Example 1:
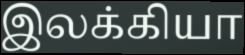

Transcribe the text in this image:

இலக்கியா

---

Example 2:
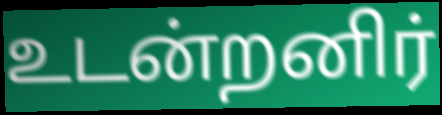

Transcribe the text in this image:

உடன்றனிர்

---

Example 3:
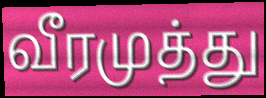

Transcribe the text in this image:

வீரமுத்து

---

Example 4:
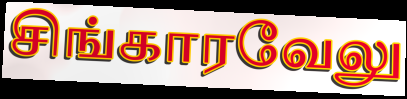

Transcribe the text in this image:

சிங்காரவேலு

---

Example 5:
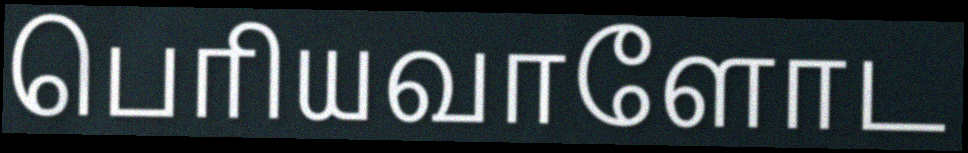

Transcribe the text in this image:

பெரியவாளோட